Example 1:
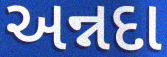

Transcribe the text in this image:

અન્નદા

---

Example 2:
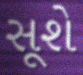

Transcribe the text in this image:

સૂશે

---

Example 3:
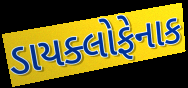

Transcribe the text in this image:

ડાયક્લોફેનાક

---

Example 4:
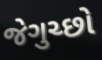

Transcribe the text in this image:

જેગુચ્છો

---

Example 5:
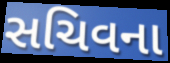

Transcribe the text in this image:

સચિવના